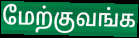
மேற்குவங்க